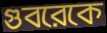
গুবরেকে